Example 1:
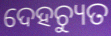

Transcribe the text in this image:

ଦେହଚ୍ୟୁତ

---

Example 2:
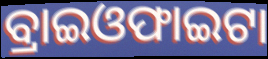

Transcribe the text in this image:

ବ୍ରାଇଓଫାଇଟା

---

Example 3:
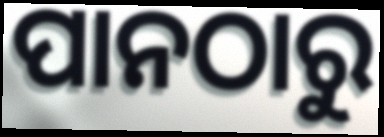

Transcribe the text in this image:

ପାନଠାରୁ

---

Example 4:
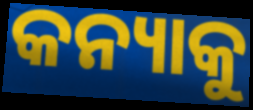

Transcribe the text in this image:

କନ୍ୟାକୁ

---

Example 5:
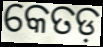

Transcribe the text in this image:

କେତଡ଼